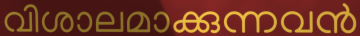
വിശാലമാക്കുന്നവൻ